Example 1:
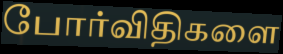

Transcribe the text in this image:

போர்விதிகளை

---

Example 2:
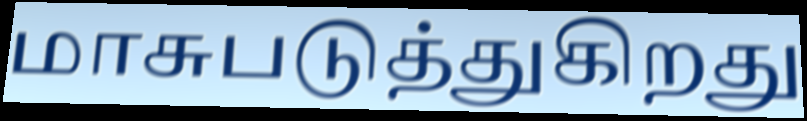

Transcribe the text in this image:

மாசுபடுத்துகிறது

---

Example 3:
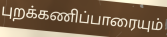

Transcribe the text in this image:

புறக்கணிப்பாரையும்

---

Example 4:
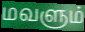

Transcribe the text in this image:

மவளும்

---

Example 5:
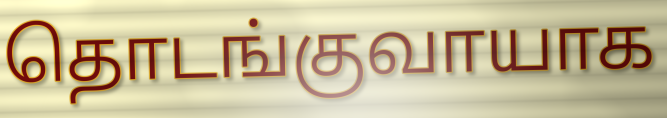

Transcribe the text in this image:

தொடங்குவாயாக